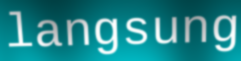
langsung